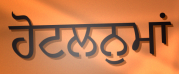
ਹੋਟਲਨੁਮਾਂ